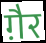
ग़ैर